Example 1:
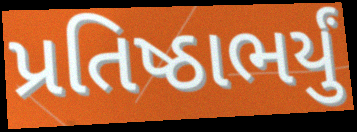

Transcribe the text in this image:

પ્રતિષ્ઠાભર્યું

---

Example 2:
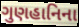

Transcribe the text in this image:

ગુણહાનિના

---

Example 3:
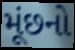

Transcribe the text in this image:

મૂંછનો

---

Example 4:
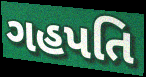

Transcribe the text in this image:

ગહપતિ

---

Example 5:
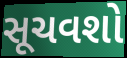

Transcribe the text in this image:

સૂચવશો